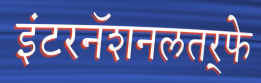
इंटरनॅशनलतर्फे